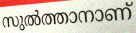
സുൽത്താനാണ്